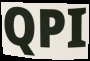
QPI